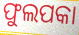
ଫୁଲପକା